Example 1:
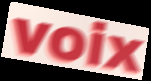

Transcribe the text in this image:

voix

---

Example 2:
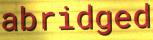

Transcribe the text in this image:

abridged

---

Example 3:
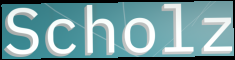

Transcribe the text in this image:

Scholz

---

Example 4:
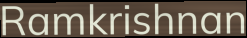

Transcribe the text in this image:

Ramkrishnan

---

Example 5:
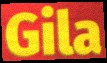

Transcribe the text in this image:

Gila